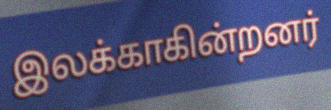
இலக்காகின்றனர்